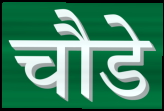
चौडे